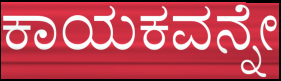
ಕಾಯಕವನ್ನೇ